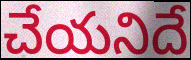
చేయనిదే